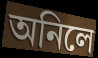
অনিলে